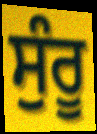
ਸੁੰਰੂ